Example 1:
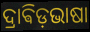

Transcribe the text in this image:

ଦ୍ରାଵିଡ଼ଭାଷା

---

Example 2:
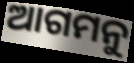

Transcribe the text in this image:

ଆଗମନୁ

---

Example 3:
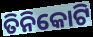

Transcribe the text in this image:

ତିନିକୋଟି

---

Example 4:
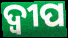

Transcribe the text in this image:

ଦ୍ବୀପ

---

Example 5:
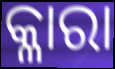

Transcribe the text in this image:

କ୍ଳାରା